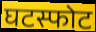
घटस्फोट